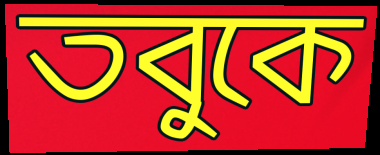
তবুকে